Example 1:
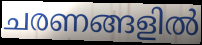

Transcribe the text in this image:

ചരണങ്ങളിൽ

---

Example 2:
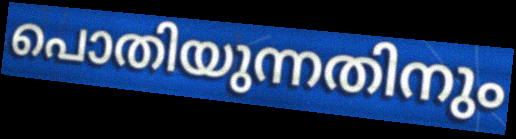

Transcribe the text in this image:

പൊതിയുന്നതിനും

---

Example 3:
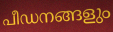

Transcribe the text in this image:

പീഡനങ്ങളും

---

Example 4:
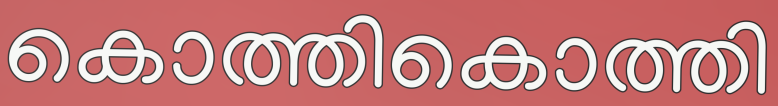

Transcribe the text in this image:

കൊത്തികൊത്തി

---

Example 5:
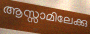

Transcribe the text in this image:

ആസ്സാമിലേക്കു